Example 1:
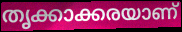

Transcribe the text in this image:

തൃക്കാക്കരയാണ്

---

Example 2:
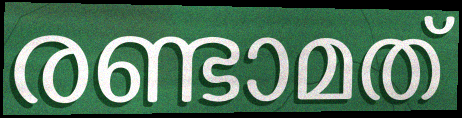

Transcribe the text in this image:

രണ്ടാമത്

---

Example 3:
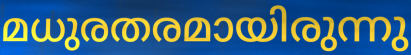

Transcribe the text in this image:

മധുരതരമായിരുന്നു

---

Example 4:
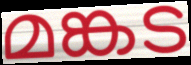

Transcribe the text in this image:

മങ്കട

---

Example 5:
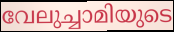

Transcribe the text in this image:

വേലുച്ചാമിയുടെ